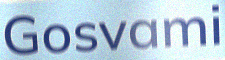
Gosvami